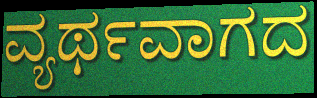
ವ್ಯರ್ಥವಾಗದ